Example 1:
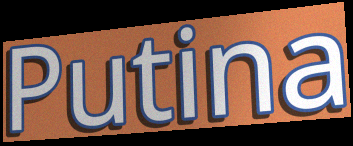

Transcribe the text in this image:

Putina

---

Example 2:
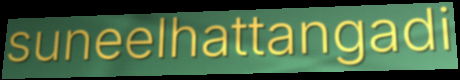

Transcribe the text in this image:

suneelhattangadi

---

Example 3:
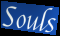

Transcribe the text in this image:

Souls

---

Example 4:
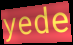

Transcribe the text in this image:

yede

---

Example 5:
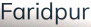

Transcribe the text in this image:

Faridpur